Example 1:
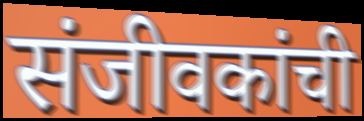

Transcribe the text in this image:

संजीवकांची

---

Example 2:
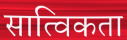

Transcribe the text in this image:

सात्विकता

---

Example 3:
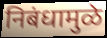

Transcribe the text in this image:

निबंधामुळे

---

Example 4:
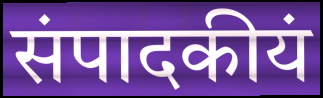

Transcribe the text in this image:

संपादकीयं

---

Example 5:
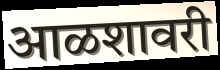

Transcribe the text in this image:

आळशावरी